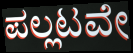
ಪಲ್ಲಟವೇ